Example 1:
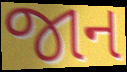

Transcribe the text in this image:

જાન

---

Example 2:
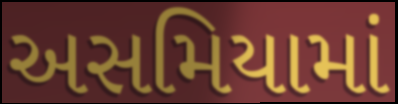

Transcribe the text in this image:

અસમિયામાં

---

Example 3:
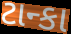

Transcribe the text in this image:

ટાન્કા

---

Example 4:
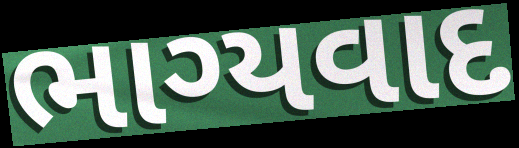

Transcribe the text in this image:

ભાગ્યવાદ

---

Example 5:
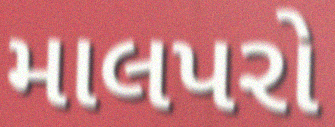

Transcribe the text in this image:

માલપરો